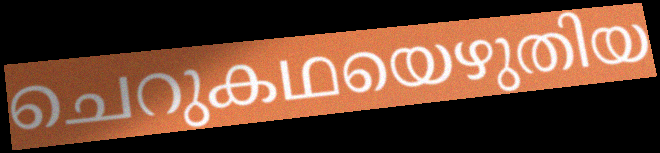
ചെറുകഥയെഴുതിയ